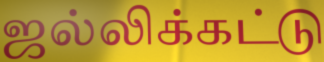
ஜல்லிக்கட்டு